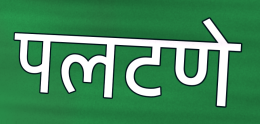
पलटणे